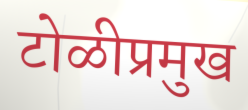
टोळीप्रमुख